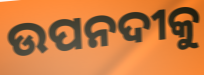
ଉପନଦୀକୁ